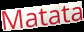
Matata